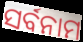
ସର୍ବନାମ